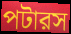
পটারস